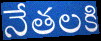
నేతలకి